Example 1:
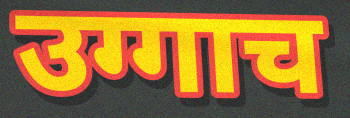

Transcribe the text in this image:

उग्गाच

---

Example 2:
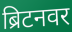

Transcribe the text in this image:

ब्रिटनवर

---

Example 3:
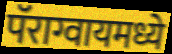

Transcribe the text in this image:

पॅराग्वायमध्ये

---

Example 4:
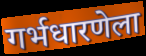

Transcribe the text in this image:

गर्भधारणेला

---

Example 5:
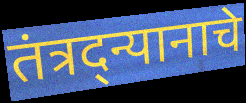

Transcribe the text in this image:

तंत्रद्न्यानाचे